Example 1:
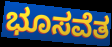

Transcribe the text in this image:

ಭೂಸವೆತ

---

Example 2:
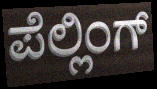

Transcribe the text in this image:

ಪೆಲ್ಲಿಂಗ್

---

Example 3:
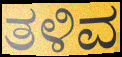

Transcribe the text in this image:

ತಳಿವ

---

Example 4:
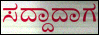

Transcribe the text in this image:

ಸದ್ದಾದಾಗ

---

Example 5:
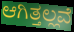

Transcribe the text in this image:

ಆಗಿತ್ತಲ್ಲವೆ